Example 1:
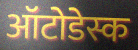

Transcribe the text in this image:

ऑटोडेस्क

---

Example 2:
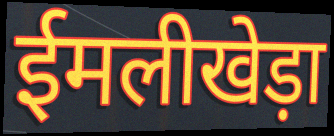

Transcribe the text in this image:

ईमलीखेड़ा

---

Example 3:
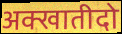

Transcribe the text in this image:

अक्खातीदो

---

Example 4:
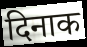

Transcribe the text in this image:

दिनाक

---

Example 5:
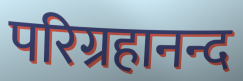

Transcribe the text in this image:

परिग्रहानन्द